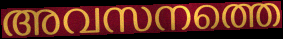
അവസനത്തെ